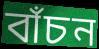
বাঁচন